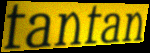
tantan